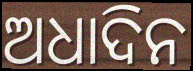
ଅଧାଦିନ